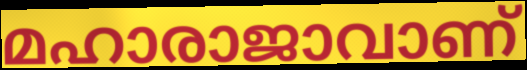
മഹാരാജാവാണ്